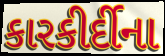
કારકીર્દીના